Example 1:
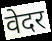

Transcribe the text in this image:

वेदर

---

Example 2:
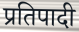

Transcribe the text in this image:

प्रतिपादी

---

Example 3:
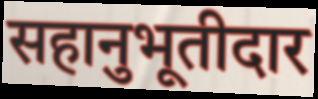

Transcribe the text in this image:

सहानुभूतीदार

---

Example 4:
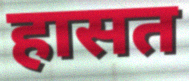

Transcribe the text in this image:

हासत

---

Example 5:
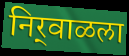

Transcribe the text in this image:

निर्वाळला